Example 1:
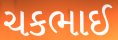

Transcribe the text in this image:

ચકભાઈ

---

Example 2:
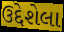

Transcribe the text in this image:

ઉદ્દેશેલા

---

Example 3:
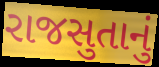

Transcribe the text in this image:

રાજસુતાનું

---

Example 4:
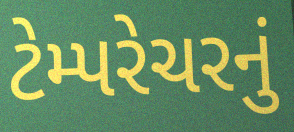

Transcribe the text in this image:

ટેમ્પરેચરનું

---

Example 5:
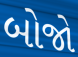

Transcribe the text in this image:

બોજો